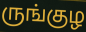
ருங்குழ